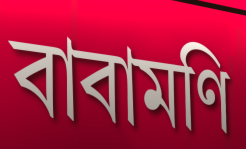
বাবামণি